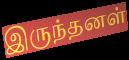
இருந்தனள்